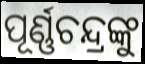
ପୂର୍ଣ୍ଣଚନ୍ଦ୍ରଙ୍କୁ